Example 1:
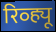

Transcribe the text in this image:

रिव्ह्यू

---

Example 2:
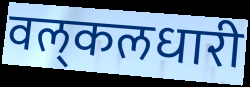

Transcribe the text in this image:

वल्कलधारी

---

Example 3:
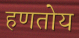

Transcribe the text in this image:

हणतोय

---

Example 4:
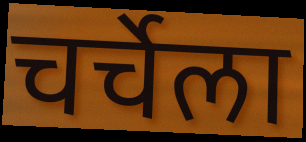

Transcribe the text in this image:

चर्चेला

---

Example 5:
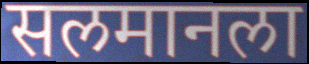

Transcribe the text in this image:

सलमानला